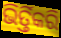
ଭିର୍ତ୍ତିକରି